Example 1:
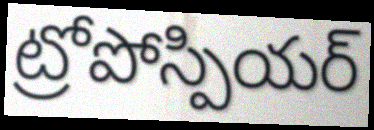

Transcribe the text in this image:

ట్రోపోస్పియర్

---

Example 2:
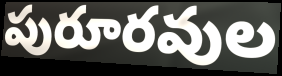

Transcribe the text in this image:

పురూరవుల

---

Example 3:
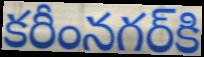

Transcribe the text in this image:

కరీంనగర్‌కి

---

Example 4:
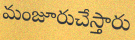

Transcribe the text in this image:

మంజూరుచేస్తారు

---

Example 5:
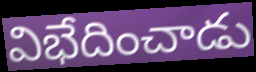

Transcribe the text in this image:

విభేదించాడు